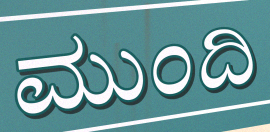
ಮುಂದಿ